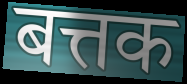
बत्तक